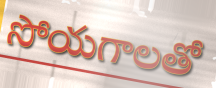
సోయగాలతో